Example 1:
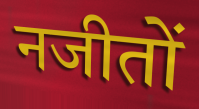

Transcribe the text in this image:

नजीतों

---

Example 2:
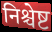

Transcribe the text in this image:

निश्चेष्ट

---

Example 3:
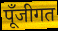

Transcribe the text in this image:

पूँजीगत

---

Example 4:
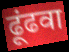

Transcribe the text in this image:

ढूंढवा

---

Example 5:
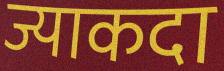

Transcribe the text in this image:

ज्याकदा